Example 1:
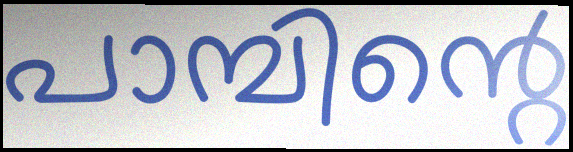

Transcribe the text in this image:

പാമ്പിന്റെ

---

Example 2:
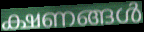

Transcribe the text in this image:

ക്ഷണങ്ങൾ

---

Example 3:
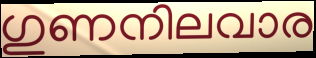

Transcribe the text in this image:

ഗുണനിലവാര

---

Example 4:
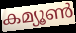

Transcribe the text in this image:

കമ്യൂൺ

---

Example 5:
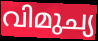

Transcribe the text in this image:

വിമുച്യ